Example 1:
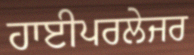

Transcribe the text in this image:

ਹਾਈਪਰਲੇਜਰ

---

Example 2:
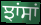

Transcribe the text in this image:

ਝਾਂਸਾਂ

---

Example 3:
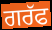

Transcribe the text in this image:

ਗਰੱਫ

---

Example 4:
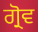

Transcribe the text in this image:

ਗ੍ਰੋਵ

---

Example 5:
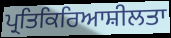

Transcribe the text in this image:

ਪ੍ਰਤਿਕਿਰਿਆਸ਼ੀਲਤਾ